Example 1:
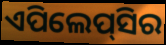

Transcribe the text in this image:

ଏପିଲେପ୍‌ସିର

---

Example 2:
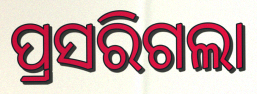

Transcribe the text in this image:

ପ୍ରସରିଗଲା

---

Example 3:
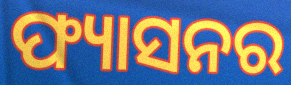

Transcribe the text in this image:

ଫ୍ୟାସନର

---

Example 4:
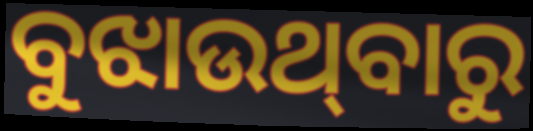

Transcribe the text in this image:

ବୁଝାଉଥ୍‌ବାରୁ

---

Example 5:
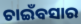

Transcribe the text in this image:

ଚାଇଁବସାର